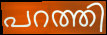
പറത്തി